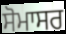
ਸੋਮਾਸਰ